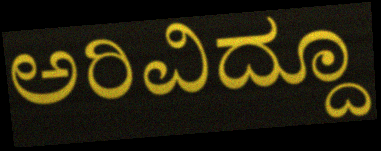
ಅರಿವಿದ್ದೂ